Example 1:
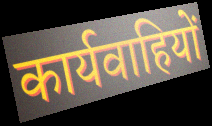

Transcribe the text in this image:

कार्यवाहियों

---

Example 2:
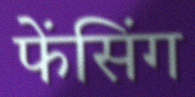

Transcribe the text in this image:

फेंसिंग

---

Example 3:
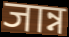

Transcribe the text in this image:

जान्न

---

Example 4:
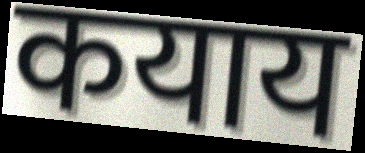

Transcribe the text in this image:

कयाय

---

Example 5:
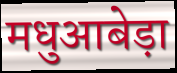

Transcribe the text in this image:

मधुआबेड़ा